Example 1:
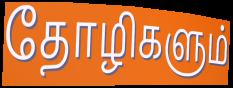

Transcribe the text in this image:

தோழிகளும்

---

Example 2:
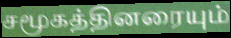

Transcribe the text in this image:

சமூகத்தினரையும்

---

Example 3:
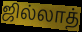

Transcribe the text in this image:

ஜில்லாத்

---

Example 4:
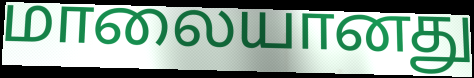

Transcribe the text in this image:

மாலையானது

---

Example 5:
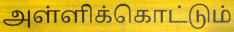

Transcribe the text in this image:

அள்ளிக்கொட்டும்